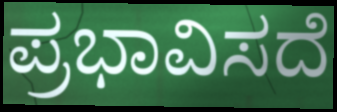
ಪ್ರಭಾವಿಸದೆ